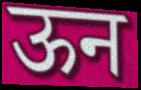
ऊन